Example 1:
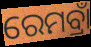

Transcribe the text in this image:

ରେମବ୍ରାଁ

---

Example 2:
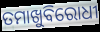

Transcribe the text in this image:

ତମାଖୁବିରୋଧୀ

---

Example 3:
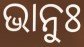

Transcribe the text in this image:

ଭାନୁଃ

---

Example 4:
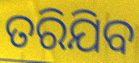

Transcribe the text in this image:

ତରିଯିବ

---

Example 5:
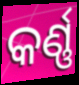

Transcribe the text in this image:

କର୍ଣ୍ଣ